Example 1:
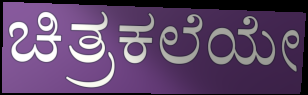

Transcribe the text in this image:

ಚಿತ್ರಕಲೆಯೇ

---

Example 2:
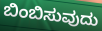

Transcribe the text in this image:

ಬಿಂಬಿಸುವುದು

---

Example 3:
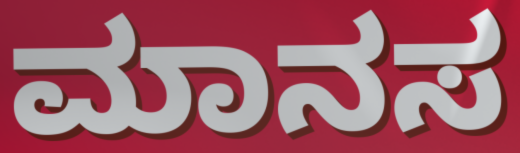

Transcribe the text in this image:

ಮಾನಸ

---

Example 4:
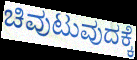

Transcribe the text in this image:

ಚಿವುಟುವುದಕ್ಕೆ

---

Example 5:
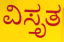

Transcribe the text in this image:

ವಿಸ್ತೃತ